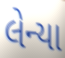
લેન્યા